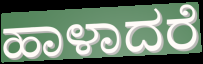
ಹಾಳಾದರೆ